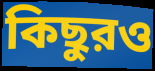
কিছুরও